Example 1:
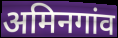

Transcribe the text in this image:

अमिनगांव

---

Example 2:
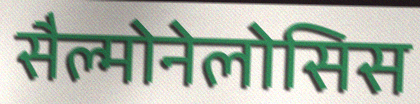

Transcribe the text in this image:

सैल्मोनेलोसिस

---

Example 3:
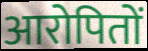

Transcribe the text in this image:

आरोपितों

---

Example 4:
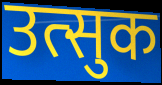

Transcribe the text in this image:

उत्‍सुक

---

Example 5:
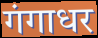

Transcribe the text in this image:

गंगाधर